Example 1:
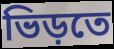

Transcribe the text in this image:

ভিড়তে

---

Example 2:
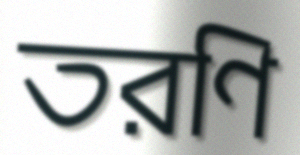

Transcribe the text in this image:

তরণি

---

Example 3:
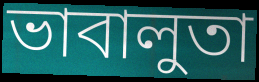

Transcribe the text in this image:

ভাবালুতা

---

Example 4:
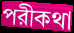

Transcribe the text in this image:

পরীকথা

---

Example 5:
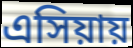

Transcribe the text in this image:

এসিয়ায়